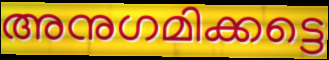
അനുഗമിക്കട്ടെ